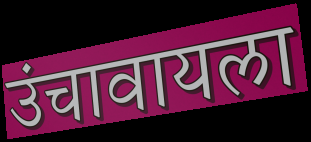
उंचावायला